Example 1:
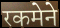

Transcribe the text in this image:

रकमेने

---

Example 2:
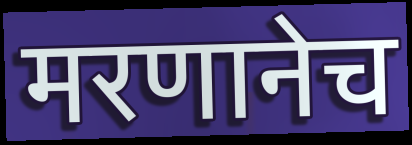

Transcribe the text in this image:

मरणानेच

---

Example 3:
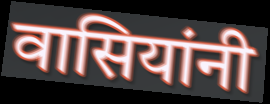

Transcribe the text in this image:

वासियांनी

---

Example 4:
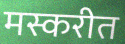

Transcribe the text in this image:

मस्करीत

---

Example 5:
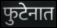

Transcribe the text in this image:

फुटेनात